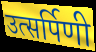
उत्सर्पिणी